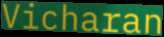
Vicharan